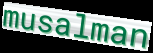
musalman